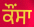
ਕੌਂਸਾ